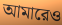
আমারেও